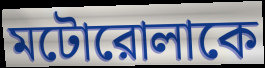
মটোরোলাকে